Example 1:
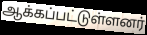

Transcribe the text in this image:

ஆக்கப்பட்டுள்ளனர்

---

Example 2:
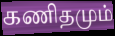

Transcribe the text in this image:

கணிதமும்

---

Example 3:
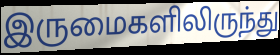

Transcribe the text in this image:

இருமைகளிலிருந்து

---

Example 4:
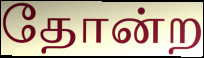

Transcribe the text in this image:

தோன்ற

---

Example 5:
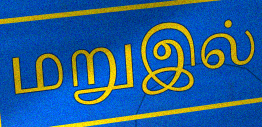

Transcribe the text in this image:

மறுஇல்